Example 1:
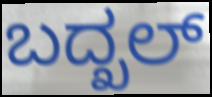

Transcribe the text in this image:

ಬದ್ಖಲ್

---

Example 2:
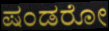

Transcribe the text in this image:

ಷಂಡರೋ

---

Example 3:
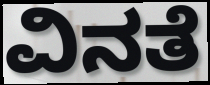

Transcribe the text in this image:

ವಿನತೆ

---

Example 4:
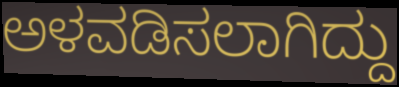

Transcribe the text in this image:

ಅಳವಡಿಸಲಾಗಿದ್ದು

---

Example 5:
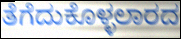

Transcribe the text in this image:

ತೆಗೆದುಕೊಳ್ಳಲಾರದ